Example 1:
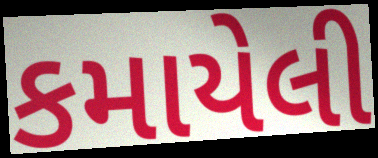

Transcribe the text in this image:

કમાયેલી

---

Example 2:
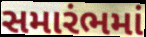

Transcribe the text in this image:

સમારંભમાં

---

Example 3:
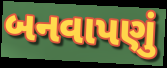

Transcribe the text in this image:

બનવાપણું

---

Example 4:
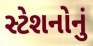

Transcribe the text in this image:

સ્ટેશનોનું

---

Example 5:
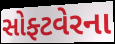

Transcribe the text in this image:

સોફ્ટવેરના